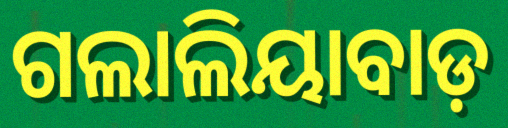
ଗଲାଲିୟାବାଡ଼